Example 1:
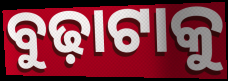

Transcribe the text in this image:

ବୁଢ଼ାଟାକୁ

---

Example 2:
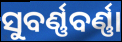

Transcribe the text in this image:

ସୁବର୍ଣ୍ଣବର୍ଣ୍ଣା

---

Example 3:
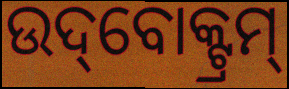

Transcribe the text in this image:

ଉଦ୍‌ବୋକ୍ଟ୍ରମ୍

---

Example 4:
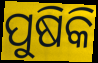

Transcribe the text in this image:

ପୁଷିକି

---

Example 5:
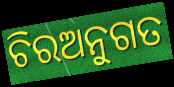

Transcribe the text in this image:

ଚିରଅନୁଗତ